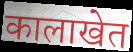
कालाखेत